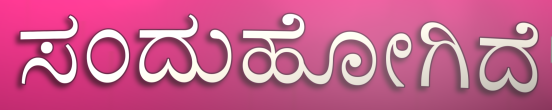
ಸಂದುಹೋಗಿದೆ